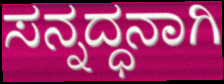
ಸನ್ನದ್ಧನಾಗಿ